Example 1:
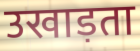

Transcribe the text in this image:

उखाड़ता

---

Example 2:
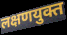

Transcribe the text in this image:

लक्षणयुक्त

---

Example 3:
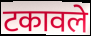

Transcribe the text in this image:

टकावले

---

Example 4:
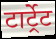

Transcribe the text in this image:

टार्ट्रेट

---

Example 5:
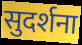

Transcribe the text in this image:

सुदर्शना